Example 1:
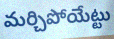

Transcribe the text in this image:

మర్చిపోయేట్టు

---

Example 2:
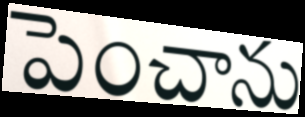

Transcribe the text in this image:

పెంచాను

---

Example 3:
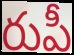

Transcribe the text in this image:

రుపీ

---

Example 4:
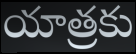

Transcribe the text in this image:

యాత్రకు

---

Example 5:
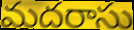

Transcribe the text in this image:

మదరాసు